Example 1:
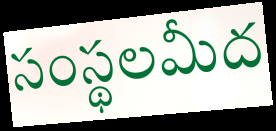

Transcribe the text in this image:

సంస్థలమీద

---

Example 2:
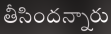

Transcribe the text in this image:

తీసిందన్నారు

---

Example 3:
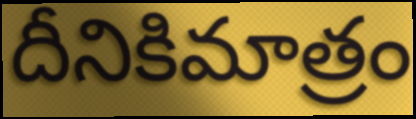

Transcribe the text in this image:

దీనికిమాత్రం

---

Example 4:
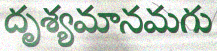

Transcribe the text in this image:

దృశ్యమానమగు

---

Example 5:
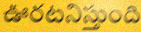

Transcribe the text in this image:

ఊరటనిస్తుంది